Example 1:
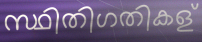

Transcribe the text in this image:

സ്ഥിതിഗതികള്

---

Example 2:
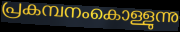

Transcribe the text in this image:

പ്രകമ്പനംകൊള്ളുന്നു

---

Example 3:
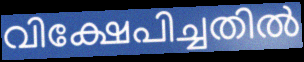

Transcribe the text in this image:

വിക്ഷേപിച്ചതിൽ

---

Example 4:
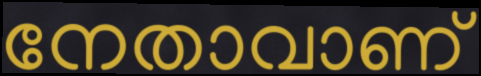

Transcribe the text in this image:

നേതാവാണ്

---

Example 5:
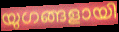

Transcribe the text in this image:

യുഗങ്ങളായി